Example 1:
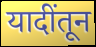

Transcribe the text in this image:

यादींतून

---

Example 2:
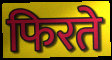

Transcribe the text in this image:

फिरते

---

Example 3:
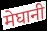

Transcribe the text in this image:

मेघानी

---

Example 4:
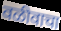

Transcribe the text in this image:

वळीवाचा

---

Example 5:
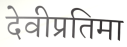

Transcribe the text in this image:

देवीप्रतिमा